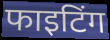
फाइटिंग